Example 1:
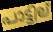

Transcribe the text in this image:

പാട്ടില്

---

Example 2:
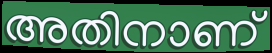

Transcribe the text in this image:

അതിനാണ്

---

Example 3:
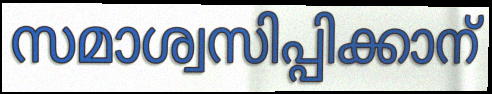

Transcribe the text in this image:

സമാശ്വസിപ്പിക്കാന്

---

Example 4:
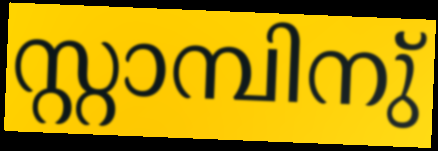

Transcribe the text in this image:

സ്റ്റാമ്പിനു്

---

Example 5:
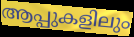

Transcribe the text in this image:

ആപ്പുകളിലും